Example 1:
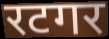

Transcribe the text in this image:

रटगर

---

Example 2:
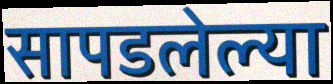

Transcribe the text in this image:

सापडलेल्या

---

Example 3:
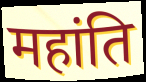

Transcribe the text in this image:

महांति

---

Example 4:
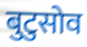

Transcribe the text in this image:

बुटुसोव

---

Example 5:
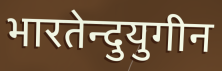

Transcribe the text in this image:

भारतेन्दुयुगीन